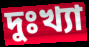
দুঃখ্যা